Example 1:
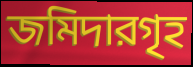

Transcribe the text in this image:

জমিদারগৃহ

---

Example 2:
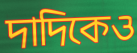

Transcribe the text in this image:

দাদিকেও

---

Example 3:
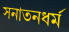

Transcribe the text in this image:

সনাতনধর্ম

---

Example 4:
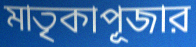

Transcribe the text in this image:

মাতৃকাপূজার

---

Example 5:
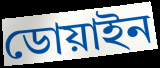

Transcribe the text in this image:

ডোয়াইন